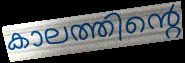
കാലത്തിന്റെ